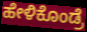
ಹೇಳಿಕೊಂಡ್ರೆ